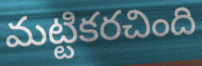
మట్టికరచింది